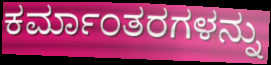
ಕರ್ಮಾಂತರಗಳನ್ನು